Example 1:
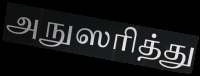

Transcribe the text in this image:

அநுஸரித்து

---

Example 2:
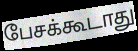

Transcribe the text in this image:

பேசக்கூடாது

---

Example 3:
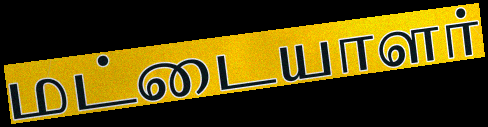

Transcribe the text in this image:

மட்டையாளர்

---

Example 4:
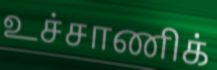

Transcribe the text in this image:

உச்சாணிக்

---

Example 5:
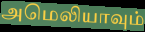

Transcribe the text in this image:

அமெலியாவும்